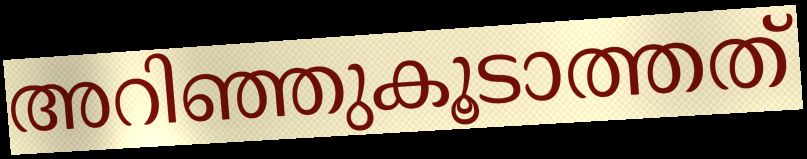
അറിഞ്ഞുകൂടാത്തത്